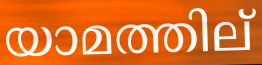
യാമത്തില്